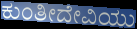
ಕುಂತೀದೇವಿಯು